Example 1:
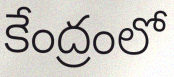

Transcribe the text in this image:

కేంద్రంలో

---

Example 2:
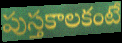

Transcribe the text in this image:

పుస్తకాలకంటే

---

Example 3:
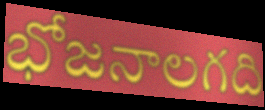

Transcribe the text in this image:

భోజనాలగది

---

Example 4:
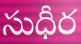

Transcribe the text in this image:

సుధీర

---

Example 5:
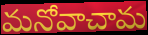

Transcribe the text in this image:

మనోవాచామ